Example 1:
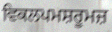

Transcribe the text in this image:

ਵਿਕਲਪਮਸ਼ਰੂਮਜ਼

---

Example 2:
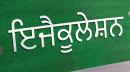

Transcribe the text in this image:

ਇਜੈਕੂਲੇਸ਼ਨ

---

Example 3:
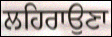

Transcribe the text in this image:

ਲਹਿਰਾਉਣਾ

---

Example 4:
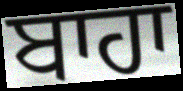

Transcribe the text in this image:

ਬਾਹਾ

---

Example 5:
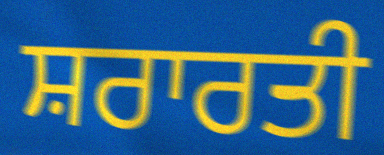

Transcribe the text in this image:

ਸ਼ਰਾਰਤੀ